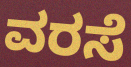
ವರಸೆ